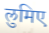
लुमिए